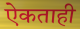
ऐकताही